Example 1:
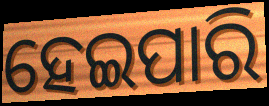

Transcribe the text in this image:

ହେଇପାରି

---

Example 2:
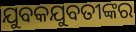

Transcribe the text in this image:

ଯୁବକଯୁବତୀଙ୍କର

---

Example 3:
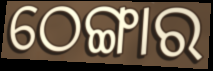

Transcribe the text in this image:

ଠେଙ୍ଗାର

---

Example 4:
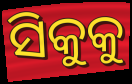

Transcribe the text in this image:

ସିକୁକୁ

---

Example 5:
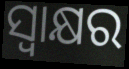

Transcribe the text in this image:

ସ୍ବାକ୍ଷର